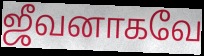
ஜீவனாகவே